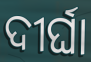
ଦୀର୍ଘା